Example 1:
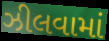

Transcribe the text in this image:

ઝીલવામાં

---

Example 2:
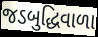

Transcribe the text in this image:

જડબુદ્ધિવાળા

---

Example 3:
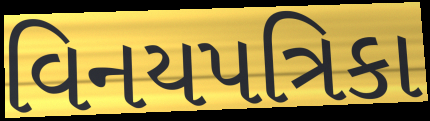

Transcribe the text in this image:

વિનયપત્રિકા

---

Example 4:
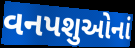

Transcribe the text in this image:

વનપશુઓનાં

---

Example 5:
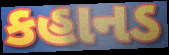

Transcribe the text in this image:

કહાનડ